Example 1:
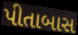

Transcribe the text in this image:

પીતાબાસ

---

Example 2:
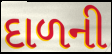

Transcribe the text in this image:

દાળની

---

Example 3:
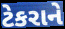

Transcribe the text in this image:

ટેકરાને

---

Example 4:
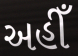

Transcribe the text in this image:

અહીઁ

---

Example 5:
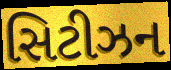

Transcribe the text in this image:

સિટીઝન